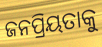
ଜନପ୍ରିୟତାକୁ